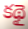
కథై